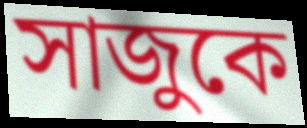
সাজুকে